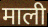
माली